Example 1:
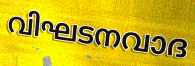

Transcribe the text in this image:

വിഘടനവാദ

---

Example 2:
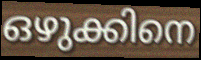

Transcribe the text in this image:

ഒഴുക്കിനെ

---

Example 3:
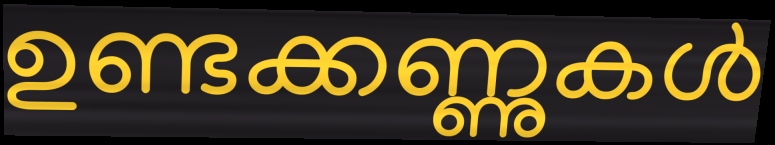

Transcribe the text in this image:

ഉണ്ടക്കണ്ണുകൾ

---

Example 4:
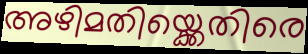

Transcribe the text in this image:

അഴിമതിയ്ക്കെതിരെ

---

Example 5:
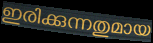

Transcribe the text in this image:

ഇരിക്കുന്നതുമായ